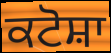
ਕਟੋਸ਼ਾ